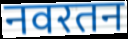
नवरतन